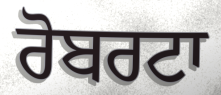
ਰੋਬਰਟਾ